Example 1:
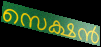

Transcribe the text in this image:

സെക്ഷൻ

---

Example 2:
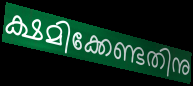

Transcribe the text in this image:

ക്ഷമിക്കേണ്ടതിനു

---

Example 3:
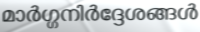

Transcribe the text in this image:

മാർഗ്ഗനിർദ്ദേശങ്ങൾ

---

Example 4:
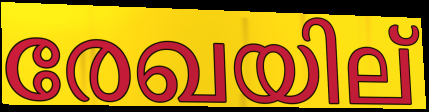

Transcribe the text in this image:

രേഖയില്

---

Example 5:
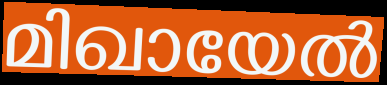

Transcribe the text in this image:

മിഖായേൽ